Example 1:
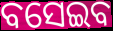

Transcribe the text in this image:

ବସେଇବ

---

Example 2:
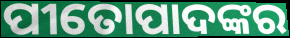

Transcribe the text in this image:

ପୀତୋପାଦଙ୍କର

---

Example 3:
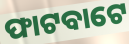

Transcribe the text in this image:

ଫାଟବାଟେ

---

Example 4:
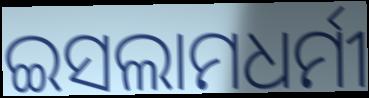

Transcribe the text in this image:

ଇସଲାମଧର୍ମୀ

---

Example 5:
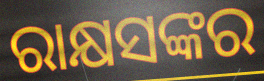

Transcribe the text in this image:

ରାକ୍ଷସଙ୍କର